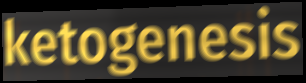
ketogenesis